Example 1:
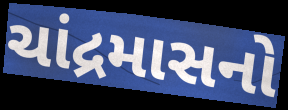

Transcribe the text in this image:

ચાંદ્રમાસનો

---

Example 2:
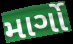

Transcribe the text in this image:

માર્ગો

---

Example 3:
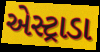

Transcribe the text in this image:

એસ્ટ્રાડા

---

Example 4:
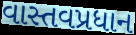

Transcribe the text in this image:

વાસ્તવપ્રધાન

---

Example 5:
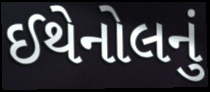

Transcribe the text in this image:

ઈથેનોલનું